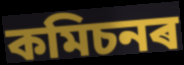
কমিচনৰ